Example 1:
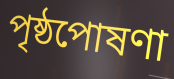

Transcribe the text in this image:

পৃষ্ঠপোষণা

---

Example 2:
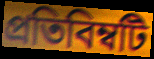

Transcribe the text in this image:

প্রতিবিম্বটি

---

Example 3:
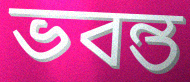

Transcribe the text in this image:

ভবন্ত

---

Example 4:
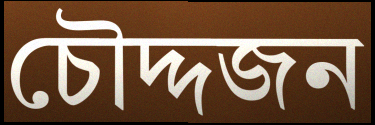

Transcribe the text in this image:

চৌদ্দজন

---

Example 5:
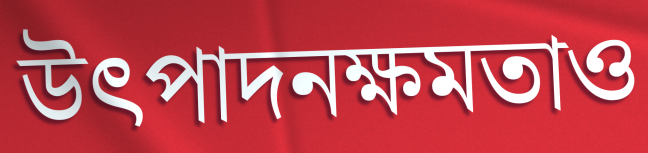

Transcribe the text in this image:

উৎপাদনক্ষমতাও